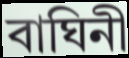
বাঘিনী